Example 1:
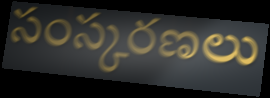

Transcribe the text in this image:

సంస్కరణలు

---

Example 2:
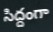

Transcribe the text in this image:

సిద్దంగా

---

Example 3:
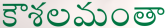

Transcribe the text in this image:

కౌశలమంతా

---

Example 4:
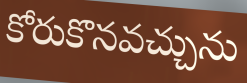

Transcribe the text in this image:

కోరుకొనవచ్చును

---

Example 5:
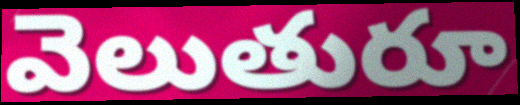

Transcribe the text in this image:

వెలుతురూ